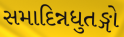
સમાદિન્નધુતઙ્ગો